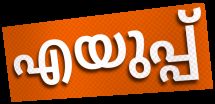
എയുപ്പ്